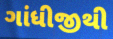
ગાંધીજીથી